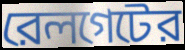
রেলগেটের